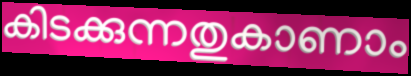
കിടക്കുന്നതുകാണാം